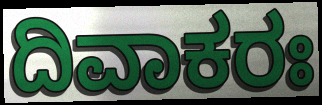
ದಿವಾಕರಃ